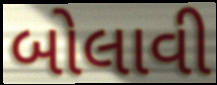
બોલાવી